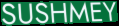
SUSHMEY